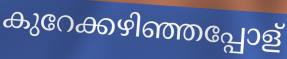
കുറേക്കഴിഞ്ഞപ്പോള്